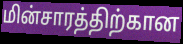
மின்சாரத்திற்கான